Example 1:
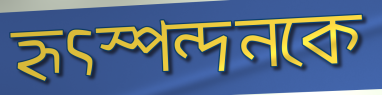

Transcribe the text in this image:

হৃৎস্পন্দনকে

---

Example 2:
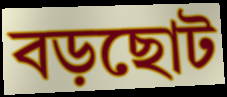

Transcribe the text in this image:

বড়ছোট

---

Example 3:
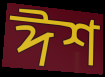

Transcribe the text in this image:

ঈশ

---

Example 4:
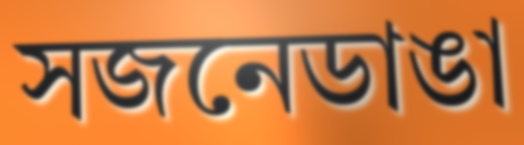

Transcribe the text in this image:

সজনেডাঙা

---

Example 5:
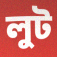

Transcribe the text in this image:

লুট